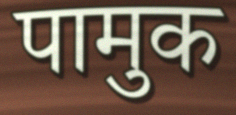
पामुक